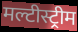
मल्टीस्ट्रीम